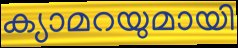
ക്യാമറയുമായി